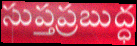
సుప్తప్రబుద్ధ